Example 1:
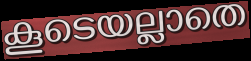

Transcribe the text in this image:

കൂടെയല്ലാതെ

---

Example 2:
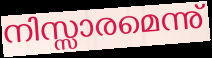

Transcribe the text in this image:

നിസ്സാരമെന്നു്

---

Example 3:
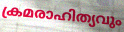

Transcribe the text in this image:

ക്രമരാഹിത്യവും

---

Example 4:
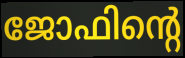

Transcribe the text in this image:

ജോഫിന്റെ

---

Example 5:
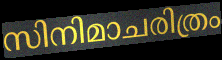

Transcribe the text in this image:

സിനിമാചരിത്രം